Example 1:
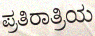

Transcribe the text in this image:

ಪ್ರತಿರಾತ್ರಿಯ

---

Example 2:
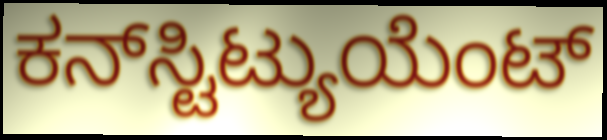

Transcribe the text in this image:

ಕನ್‌ಸ್ಟಿಟ್ಯುಯೆಂಟ್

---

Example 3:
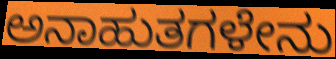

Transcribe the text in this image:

ಅನಾಹುತಗಳೇನು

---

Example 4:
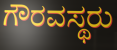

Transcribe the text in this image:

ಗೌರವಸ್ಥರು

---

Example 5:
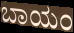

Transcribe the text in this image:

ಬಾಯಂ